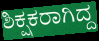
ಶಿಕ್ಷಕರಾಗಿದ್ದ